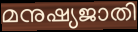
മനുഷ്യജാതി